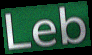
Leb